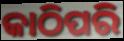
କାଠିପରି